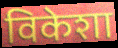
विकेशा